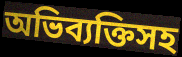
অভিব্যক্তিসহ